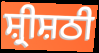
ਸ਼੍ਰੀਸ਼ਠੀ